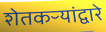
शेतकऱ्यांद्वारे